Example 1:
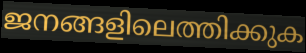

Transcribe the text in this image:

ജനങ്ങളിലെത്തിക്കുക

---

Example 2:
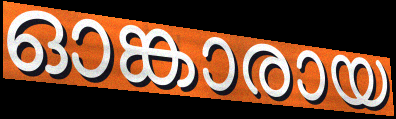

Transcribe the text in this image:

ഓങ്കാരായ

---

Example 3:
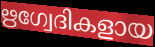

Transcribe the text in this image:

ഋഗ്വേദികളായ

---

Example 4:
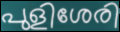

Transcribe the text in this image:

പുളിശേരി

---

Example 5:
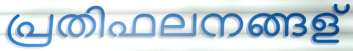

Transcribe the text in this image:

പ്രതിഫലനങ്ങള്